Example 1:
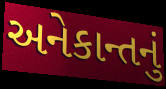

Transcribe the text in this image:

અનેકાન્તનું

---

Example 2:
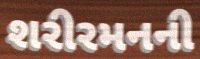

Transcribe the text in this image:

શરીરમનની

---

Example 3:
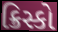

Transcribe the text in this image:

ક્રિસ્કો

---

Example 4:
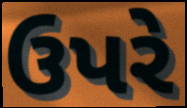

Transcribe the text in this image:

ઉપરે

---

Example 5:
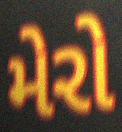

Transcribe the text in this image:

મેરો